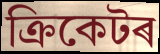
ক্ৰিকেটৰ